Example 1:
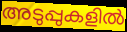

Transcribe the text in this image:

അടുപ്പുകളിൽ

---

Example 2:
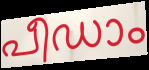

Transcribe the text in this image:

പീഡാം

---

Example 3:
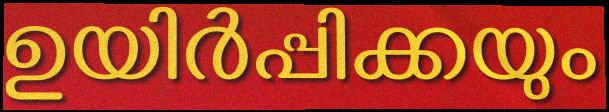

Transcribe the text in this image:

ഉയിർപ്പിക്കയും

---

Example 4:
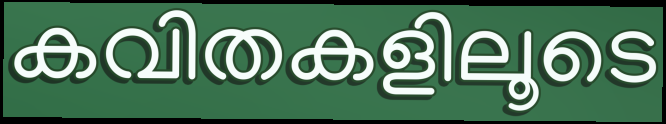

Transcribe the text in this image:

കവിതകളിലൂടെ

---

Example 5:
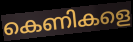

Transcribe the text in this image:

കെണികളെ